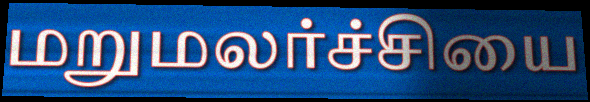
மறுமலர்ச்சியை